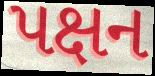
પક્ષન